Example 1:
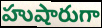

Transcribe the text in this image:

హుషారుగా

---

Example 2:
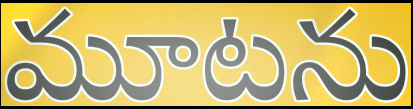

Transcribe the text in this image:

మూటను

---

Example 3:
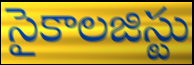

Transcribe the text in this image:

సైకాలజిస్టు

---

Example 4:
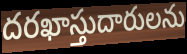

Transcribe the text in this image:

దరఖాస్తుదారులను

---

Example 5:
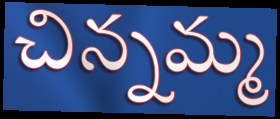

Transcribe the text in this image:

చిన్నమ్మ